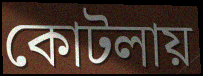
কোটলায়